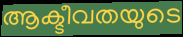
ആക്ടീവതയുടെ